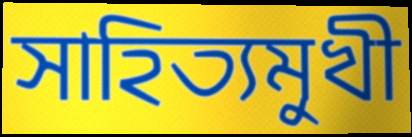
সাহিত্যমুখী